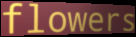
flowers